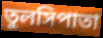
তুলসিপাতা